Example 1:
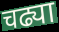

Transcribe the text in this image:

चढ्या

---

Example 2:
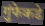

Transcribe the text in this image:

गुंफेकडे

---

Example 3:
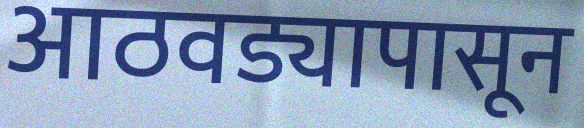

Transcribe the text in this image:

आठवड्यापासून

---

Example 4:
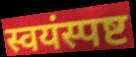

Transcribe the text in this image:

स्वयंस्पष्ट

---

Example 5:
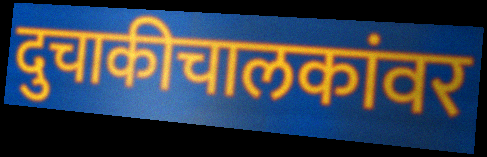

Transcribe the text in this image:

दुचाकीचालकांवर